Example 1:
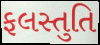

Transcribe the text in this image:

ફલસ્તુતિ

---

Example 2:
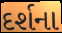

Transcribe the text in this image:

દર્શના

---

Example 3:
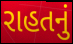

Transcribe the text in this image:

રાહતનું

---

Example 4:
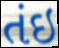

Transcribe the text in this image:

તંઇ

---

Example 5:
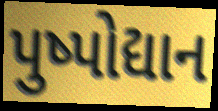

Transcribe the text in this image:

પુષ્પોદ્યાન